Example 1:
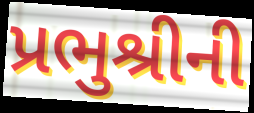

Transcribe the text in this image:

પ્રભુશ્રીની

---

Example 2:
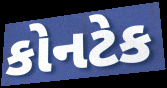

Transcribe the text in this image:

કોનટેક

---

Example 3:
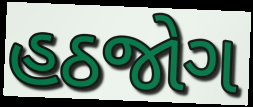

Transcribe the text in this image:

હઠજોગ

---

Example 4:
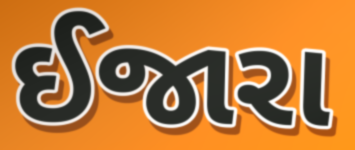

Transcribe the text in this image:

ઈજારા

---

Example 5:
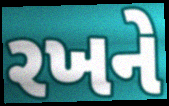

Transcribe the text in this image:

રખને